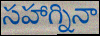
సహాగ్నినా